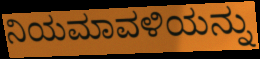
ನಿಯಮಾವಳಿಯನ್ನು